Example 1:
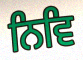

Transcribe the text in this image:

ਨਿਵਿ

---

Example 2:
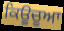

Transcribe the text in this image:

ਕਿਊਚੂਆ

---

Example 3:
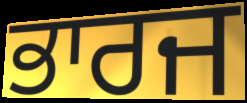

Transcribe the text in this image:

ਭਾਰਜ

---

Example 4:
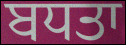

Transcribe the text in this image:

ਬਧਤਾ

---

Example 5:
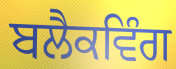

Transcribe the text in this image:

ਬਲੈਕਵਿੰਗ